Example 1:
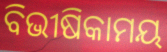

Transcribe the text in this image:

ବିଭୀଷିକାମୟ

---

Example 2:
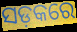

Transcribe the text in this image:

ସଡ଼କରେ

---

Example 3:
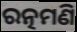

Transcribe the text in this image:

ରତ୍ନମଣି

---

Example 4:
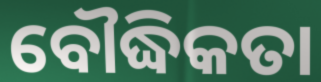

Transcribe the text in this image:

ବୌଦ୍ଧିକତା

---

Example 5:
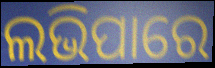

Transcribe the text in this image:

ଲଭିପାରେ